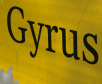
Gyrus